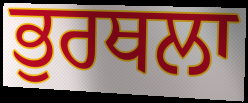
ਭੁਰਥਲਾ